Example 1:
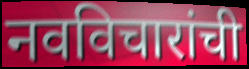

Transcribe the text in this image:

नवविचारांची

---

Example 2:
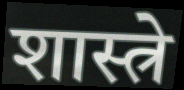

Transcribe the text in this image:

शास्त्रे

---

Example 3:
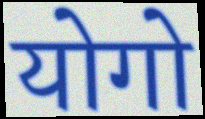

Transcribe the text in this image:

योगो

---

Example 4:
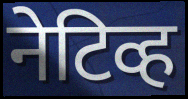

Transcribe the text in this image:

नेटिव्ह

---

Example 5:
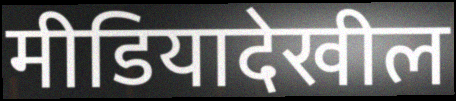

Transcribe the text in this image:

मीडियादेखील